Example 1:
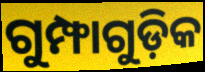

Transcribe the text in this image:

ଗୁମ୍ଫାଗୁଡ଼ିକ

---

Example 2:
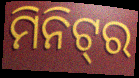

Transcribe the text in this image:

ମିନିଟ୍‌ର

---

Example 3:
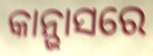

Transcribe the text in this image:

କାନ୍ଭାସରେ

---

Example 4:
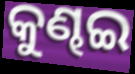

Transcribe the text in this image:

କୁଣ୍ଢଇ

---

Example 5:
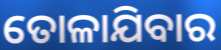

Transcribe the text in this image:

ତୋଳାଯିବାର